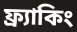
ফ্র্যাকিং